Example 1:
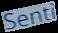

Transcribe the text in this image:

Senti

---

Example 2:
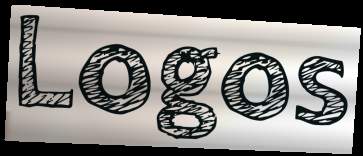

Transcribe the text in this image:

Logos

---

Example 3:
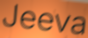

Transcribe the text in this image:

Jeeva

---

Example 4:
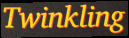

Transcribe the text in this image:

Twinkling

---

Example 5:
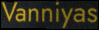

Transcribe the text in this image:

Vanniyas